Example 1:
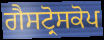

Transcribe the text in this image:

ਗੈਸਟ੍ਰੋਸਕੋਪ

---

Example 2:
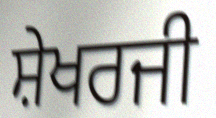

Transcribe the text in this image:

ਸ਼ੇਖਰਜੀ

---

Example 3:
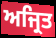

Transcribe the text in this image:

ਅਜ੍ਰਿਤ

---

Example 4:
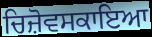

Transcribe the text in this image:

ਚਿਜ਼ੋਵਸਕਾਇਆ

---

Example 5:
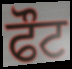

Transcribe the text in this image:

ਫੌਟ